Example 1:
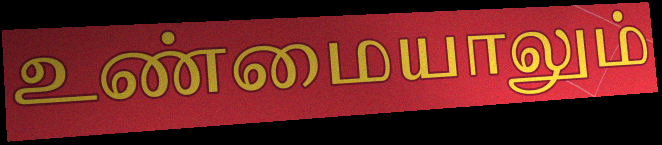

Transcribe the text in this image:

உண்மையாலும்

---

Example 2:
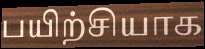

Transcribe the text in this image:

பயிற்சியாக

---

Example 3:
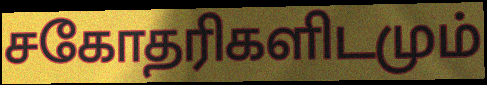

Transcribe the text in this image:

சகோதரிகளிடமும்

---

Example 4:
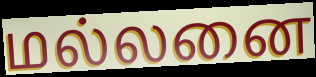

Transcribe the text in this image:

மல்லனை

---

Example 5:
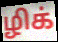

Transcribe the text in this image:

ழிக்